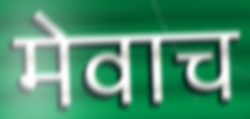
मेवाच